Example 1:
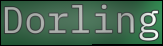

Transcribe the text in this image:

Dorling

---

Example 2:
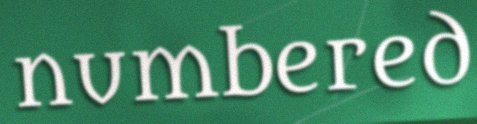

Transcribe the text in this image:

numbered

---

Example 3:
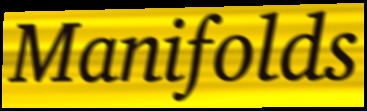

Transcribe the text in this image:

Manifolds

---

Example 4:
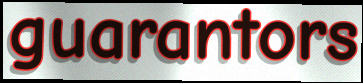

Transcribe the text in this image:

guarantors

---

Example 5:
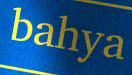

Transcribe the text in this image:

bahya